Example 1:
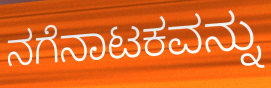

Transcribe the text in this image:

ನಗೆನಾಟಕವನ್ನು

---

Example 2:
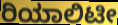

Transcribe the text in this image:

ರಿಯಾಲಿಟೀ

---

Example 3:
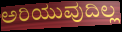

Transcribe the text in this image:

ಅರಿಯುವುದಿಲ್ಲ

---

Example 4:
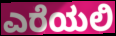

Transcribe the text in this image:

ಎರೆಯಲಿ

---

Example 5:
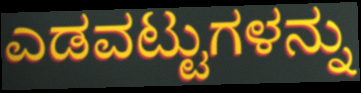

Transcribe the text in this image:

ಎಡವಟ್ಟುಗಳನ್ನು